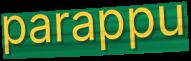
parappu